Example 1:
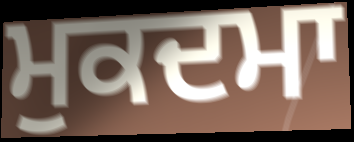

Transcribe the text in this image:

ਮੁਕਦਮਾ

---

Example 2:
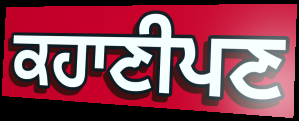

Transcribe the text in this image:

ਕਹਾਣੀਪਣ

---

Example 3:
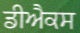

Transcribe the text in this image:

ਡੀਐਕਸ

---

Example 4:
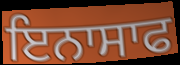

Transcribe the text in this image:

ਇਨਾਸਾਫ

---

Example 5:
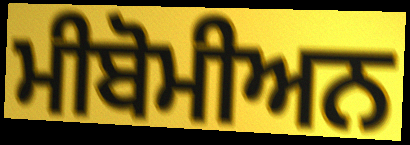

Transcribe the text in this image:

ਮੀਬੋਮੀਅਨ